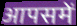
आपसमें